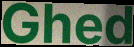
Ghed